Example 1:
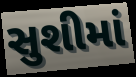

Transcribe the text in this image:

સુશીમાં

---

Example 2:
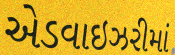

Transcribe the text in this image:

એડવાઇઝરીમાં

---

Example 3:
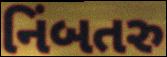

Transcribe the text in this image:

નિંબતરુ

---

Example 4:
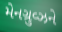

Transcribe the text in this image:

મેનગ્રુવ્ઝને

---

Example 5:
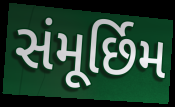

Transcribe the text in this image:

સંમૂર્છિમ